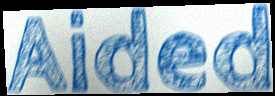
Aided